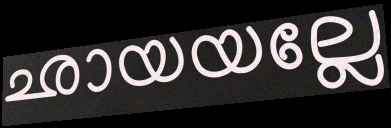
ഛായയല്ലേ